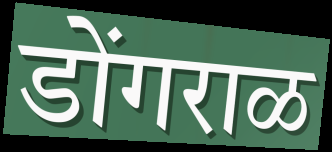
डोंगराळ